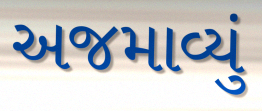
અજમાવ્યું